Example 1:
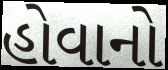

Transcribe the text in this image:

હોવાનો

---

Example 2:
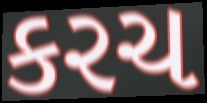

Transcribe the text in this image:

કરચ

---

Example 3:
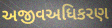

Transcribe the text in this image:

અજીવઅધિકરણ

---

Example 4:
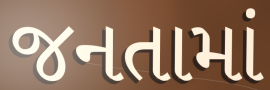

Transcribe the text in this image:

જનતામાં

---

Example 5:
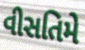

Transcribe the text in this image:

વીસતિમે